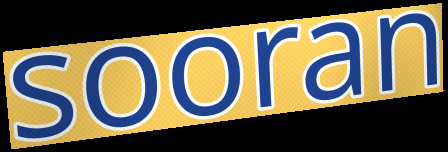
sooran